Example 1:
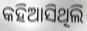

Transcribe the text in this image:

କହିଆସିଥିଲି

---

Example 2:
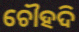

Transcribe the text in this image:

ଚୌହଦି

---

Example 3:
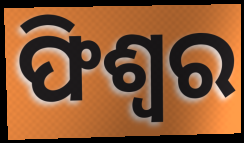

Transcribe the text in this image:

ଫିଶ୍ୱର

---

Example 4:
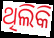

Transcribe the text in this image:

ଥିଲିକି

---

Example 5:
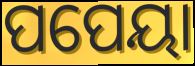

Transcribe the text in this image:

ପପେୟା